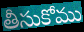
తీసుకోము